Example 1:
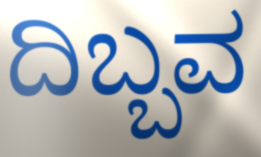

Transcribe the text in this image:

ದಿಬ್ಬವ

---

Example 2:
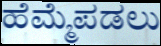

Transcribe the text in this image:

ಹೆಮ್ಮೆಪಡಲು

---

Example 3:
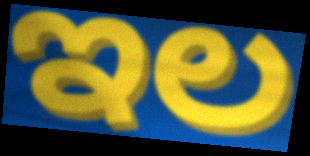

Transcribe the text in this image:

ಇಲ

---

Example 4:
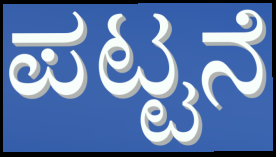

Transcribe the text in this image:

ಪಟ್ಟನೆ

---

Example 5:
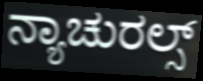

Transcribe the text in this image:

ನ್ಯಾಚುರಲ್ಸ್